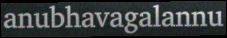
anubhavagalannu